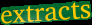
extracts